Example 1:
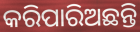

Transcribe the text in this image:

କରିପାରିଅଛନ୍ତି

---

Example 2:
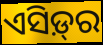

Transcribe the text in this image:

ଏସିଡ଼୍‌ର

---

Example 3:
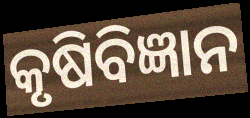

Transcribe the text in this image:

କୃଷିବିଜ୍ଞାନ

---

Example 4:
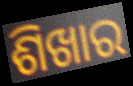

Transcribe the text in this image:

ଶିଖାର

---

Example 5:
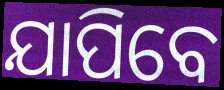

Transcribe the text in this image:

ଯାପିବେ